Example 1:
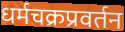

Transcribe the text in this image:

धर्मचक्रप्रवर्तन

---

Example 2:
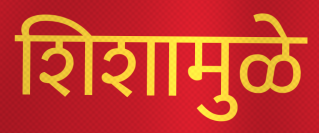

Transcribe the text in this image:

शिशामुळे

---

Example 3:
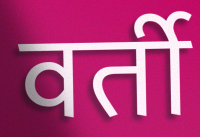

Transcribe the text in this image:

वर्ती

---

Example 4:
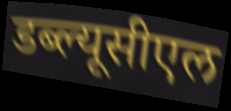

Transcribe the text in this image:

डब्ल्यूसीएल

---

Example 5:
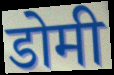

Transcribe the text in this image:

डोमी